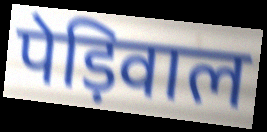
पेड़िवाल